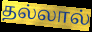
தல்லால்